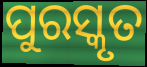
ପୁରସ୍କୃତ